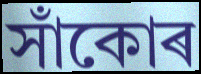
সাঁকোৰ